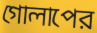
গোলাপের